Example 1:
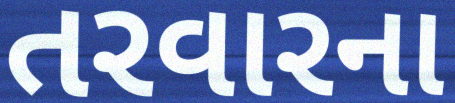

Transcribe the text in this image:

તરવારના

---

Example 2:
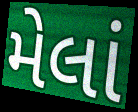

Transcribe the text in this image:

મેલાં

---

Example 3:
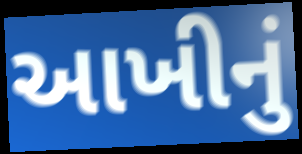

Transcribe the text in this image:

આખીનું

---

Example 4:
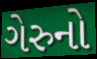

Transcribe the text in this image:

ગેરુનો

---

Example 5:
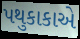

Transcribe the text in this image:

પથુકાકાએ